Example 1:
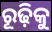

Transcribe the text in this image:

ରୂଢ଼ିକୁ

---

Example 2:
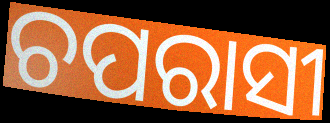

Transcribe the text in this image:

ଚପରାସୀ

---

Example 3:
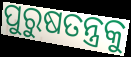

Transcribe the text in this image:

ପୁରୁଷତନ୍ତ୍ରକୁ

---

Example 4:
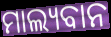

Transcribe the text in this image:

ମାଲ୍ୟବାନ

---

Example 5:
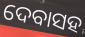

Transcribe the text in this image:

ଦେବାସହ